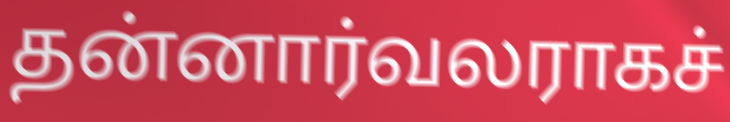
தன்னார்வலராகச்